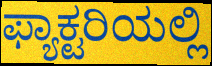
ಫ್ಯಾಕ್ಟರಿಯಲ್ಲಿ